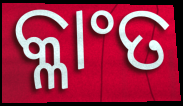
କ୍ଳାଂତ